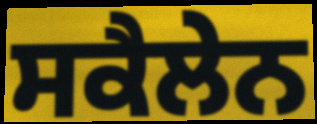
ਸਕੈਲੇਨ